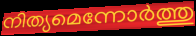
നിത്യമെന്നോർത്തു